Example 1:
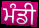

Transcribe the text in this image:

ਮੰਡੀ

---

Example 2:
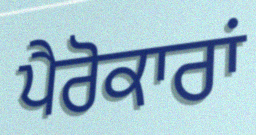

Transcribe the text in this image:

ਪੈਰੋਕਾਰਾਂ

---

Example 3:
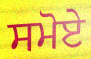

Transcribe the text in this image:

ਸਮੋਏ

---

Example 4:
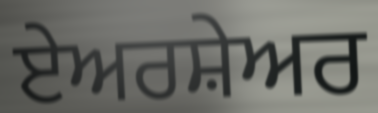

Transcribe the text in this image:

ਏਅਰਸ਼ੇਅਰ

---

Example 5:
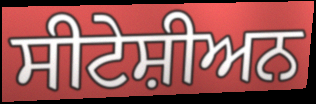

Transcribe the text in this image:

ਸੀਟੇਸ਼ੀਅਨ